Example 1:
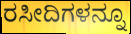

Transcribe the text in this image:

ರಸೀದಿಗಳನ್ನೂ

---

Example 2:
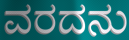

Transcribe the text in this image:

ವರದನು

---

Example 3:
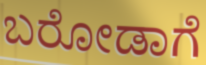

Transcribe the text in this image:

ಬರೋಡಾಗೆ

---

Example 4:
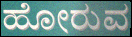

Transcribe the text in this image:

ಹೋರುವ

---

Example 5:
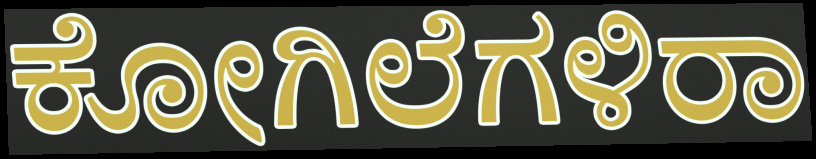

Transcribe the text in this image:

ಕೋಗಿಲೆಗಳಿರಾ